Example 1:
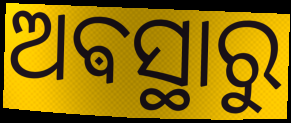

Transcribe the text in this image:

ଅଵସ୍ଥାରୁ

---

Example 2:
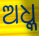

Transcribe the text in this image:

ଅଧ୍କ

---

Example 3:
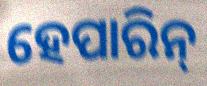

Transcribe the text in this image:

ହେପାରିନ୍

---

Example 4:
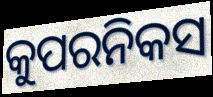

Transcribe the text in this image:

କୁପରନିକସ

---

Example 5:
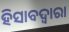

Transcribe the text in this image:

ହିସାବଦ୍ଵାରା